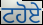
ਟਹੋਏ